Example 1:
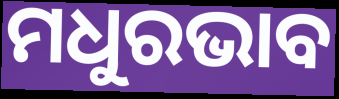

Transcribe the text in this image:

ମଧୁରଭାବ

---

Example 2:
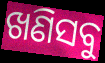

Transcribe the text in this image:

ଖଣିସବୁ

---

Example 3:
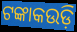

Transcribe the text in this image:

ଟଙ୍କାକଉଡ଼ି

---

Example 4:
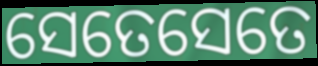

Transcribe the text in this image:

ସେତେସେତେ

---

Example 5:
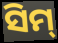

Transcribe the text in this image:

ସିମ୍